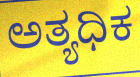
ಅತ್ಯಧಿಕ